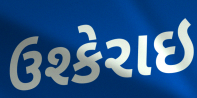
ઉશ્કેરાઇ